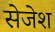
सेजेश